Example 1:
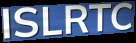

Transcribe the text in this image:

ISLRTC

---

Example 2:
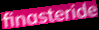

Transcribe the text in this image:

finasteride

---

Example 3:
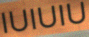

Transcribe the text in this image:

IUIUIU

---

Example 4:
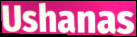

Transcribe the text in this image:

Ushanas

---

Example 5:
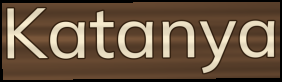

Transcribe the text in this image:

Katanya